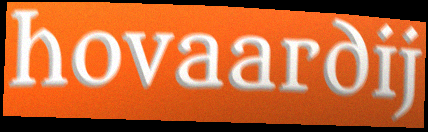
hovaardij